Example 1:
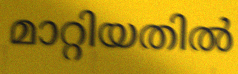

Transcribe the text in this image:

മാറ്റിയതിൽ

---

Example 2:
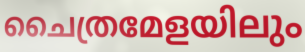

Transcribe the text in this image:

ചൈത്രമേളയിലും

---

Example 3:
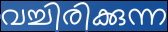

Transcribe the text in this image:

വച്ചിരിക്കുന്ന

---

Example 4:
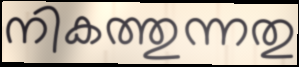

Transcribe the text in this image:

നികത്തുന്നതു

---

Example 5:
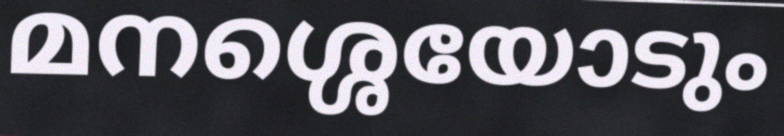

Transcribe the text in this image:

മനശ്ശെയോടും